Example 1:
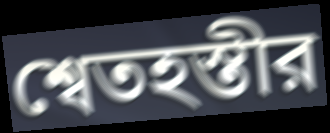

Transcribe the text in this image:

শ্বেতহস্তীর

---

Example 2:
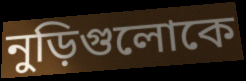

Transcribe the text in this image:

নুড়িগুলোকে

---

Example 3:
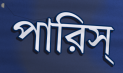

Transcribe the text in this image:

পারিস্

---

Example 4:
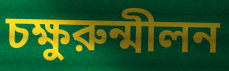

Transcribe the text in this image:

চক্ষুরুন্মীলন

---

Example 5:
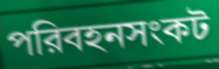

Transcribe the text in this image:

পরিবহনসংকট